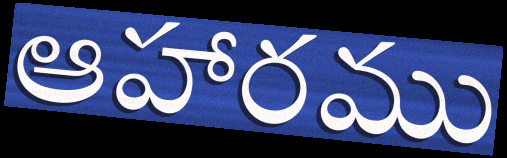
ఆహారము